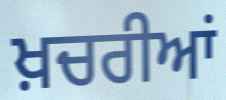
ਖ਼ਚਰੀਆਂ